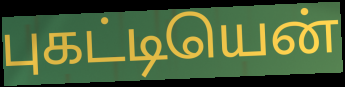
புகட்டியென்